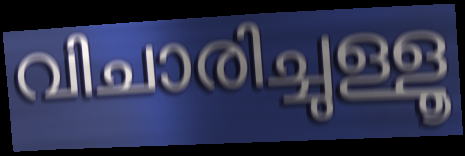
വിചാരിച്ചുള്ളൂ